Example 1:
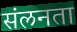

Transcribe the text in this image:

संलनता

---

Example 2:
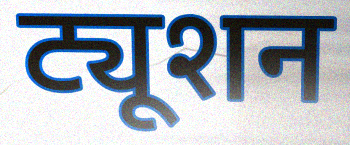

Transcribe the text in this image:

ट्यूशन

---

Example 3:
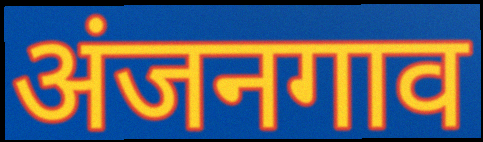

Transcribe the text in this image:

अंजनगाव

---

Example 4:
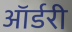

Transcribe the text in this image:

ऑर्डरी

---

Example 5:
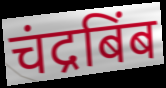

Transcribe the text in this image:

चंद्रबिंब